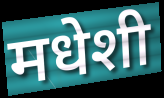
मधेशी